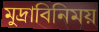
মুদ্রাবিনিময়